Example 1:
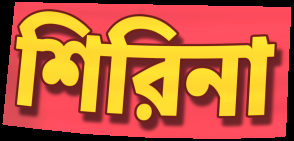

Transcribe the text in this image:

শিরিনা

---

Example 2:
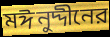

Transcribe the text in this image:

মঈনুদ্দীনের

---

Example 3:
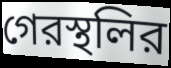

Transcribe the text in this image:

গেরস্থলির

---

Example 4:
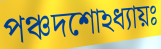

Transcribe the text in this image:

পঞ্চদশোঽধ্যায়ঃ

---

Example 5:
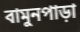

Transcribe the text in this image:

বামুনপাড়া